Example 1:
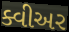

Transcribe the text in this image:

ક્વીઅર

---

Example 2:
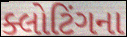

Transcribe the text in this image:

ક્લોટિંગના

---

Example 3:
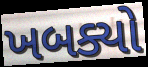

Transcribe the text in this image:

ખબક્યો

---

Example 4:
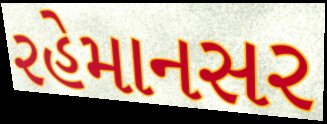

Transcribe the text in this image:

રહેમાનસર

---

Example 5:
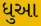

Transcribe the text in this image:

ધુઆ